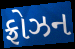
ફ્રોઝન